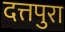
दत्तपुरा